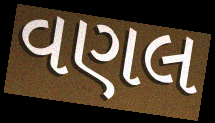
વણલ